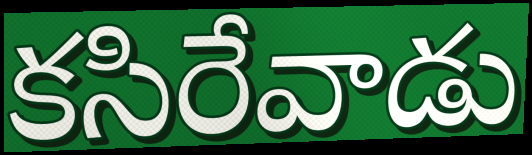
కసిరేవాడు